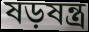
ষড়ষন্ত্র